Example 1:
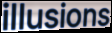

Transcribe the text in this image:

illusions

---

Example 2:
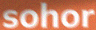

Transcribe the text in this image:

sohor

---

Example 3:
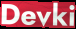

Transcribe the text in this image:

Devki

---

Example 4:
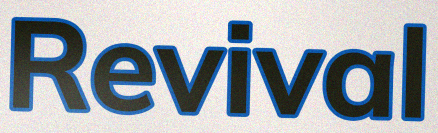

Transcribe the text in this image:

Revival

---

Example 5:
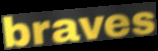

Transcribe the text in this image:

braves